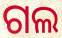
ଗଲ